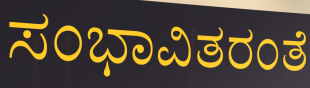
ಸಂಭಾವಿತರಂತೆ